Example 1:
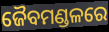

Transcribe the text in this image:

ଜୈବମଣ୍ଡଳରେ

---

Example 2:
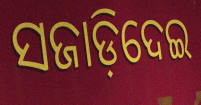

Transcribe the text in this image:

ସଜାଡ଼ିଦେଇ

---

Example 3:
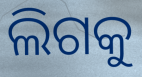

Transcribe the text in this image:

ଲିଗକୁ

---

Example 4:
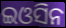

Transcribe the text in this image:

ଇଓସିନ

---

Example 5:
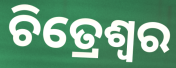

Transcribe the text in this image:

ଚିତ୍ରେଶ୍ୱର